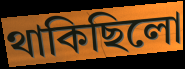
থাকিছিলো